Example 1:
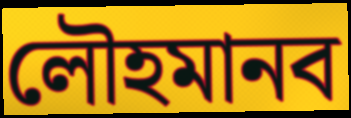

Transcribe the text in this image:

লৌহমানব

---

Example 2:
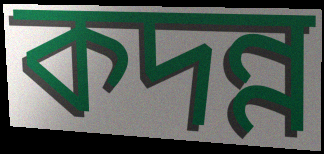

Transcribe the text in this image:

কদন্ন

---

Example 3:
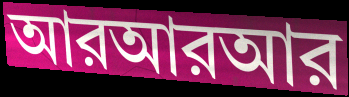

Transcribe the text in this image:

আরআরআর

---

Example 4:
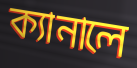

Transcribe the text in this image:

ক্যানালে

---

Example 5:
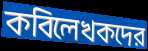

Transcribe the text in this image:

কবিলেখকদের